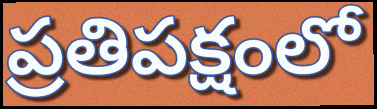
ప్రతిపక్షంలో